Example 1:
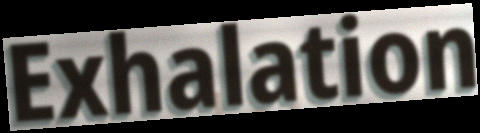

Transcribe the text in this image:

Exhalation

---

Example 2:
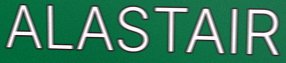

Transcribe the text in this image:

ALASTAIR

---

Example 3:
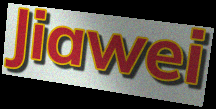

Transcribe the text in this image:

Jiawei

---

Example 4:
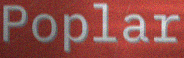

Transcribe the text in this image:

Poplar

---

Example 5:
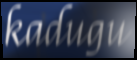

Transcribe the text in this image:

kadugu